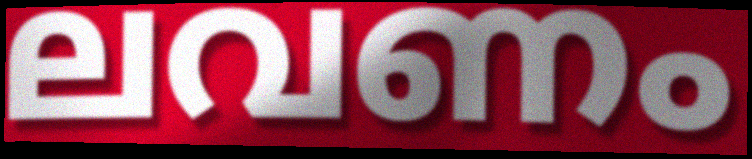
ലവണം